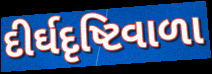
દીર્ઘદૃષ્ટિવાળા